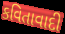
કવિતાવાદી